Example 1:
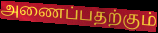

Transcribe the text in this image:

அணைப்பதற்கும்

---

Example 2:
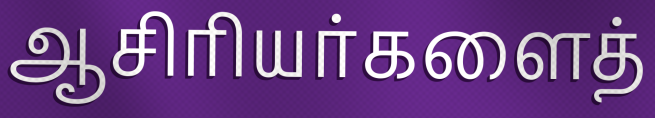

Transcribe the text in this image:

ஆசிரியர்களைத்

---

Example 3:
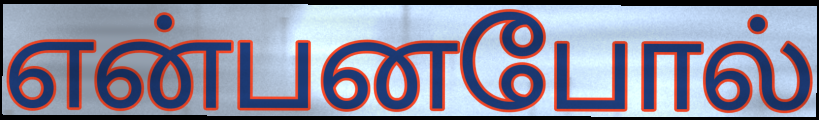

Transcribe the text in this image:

என்பனபோல்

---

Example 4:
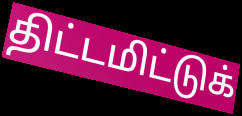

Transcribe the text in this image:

திட்டமிட்டுக்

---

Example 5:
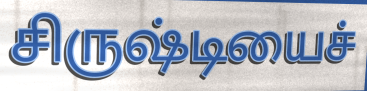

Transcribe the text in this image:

சிருஷ்டியைச்